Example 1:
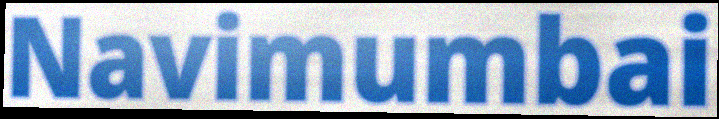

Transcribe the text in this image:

Navimumbai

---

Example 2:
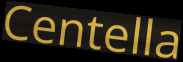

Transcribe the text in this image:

Centella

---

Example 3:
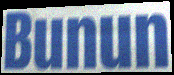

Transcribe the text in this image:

Bunun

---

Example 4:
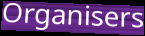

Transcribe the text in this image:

Organisers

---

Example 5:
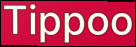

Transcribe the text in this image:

Tippoo